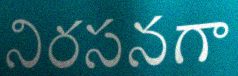
నిరసనగా